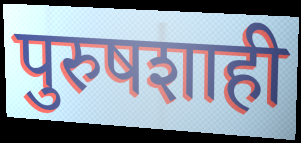
पुरुषशाही